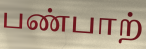
பண்பாற்